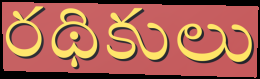
రథికులు